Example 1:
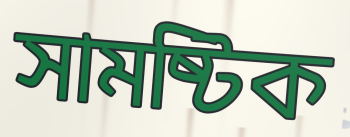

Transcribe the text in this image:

সামষ্টিক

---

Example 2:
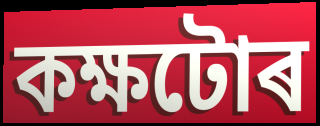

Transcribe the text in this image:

কক্ষটোৰ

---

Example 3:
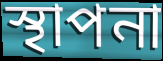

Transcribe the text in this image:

স্থাপনা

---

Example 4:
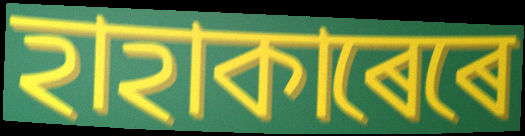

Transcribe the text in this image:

হাহাকাৰেৰে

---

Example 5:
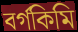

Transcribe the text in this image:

বৰ্গকিমি